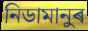
নিডামানুৰ